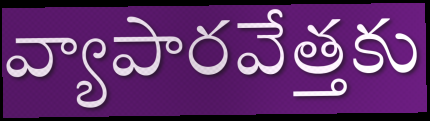
వ్యాపారవేత్తకు